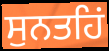
ਸੁਨਤਹਿਂ